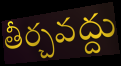
తీర్చవద్దు